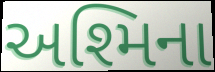
અશ્મિના